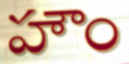
హౌం